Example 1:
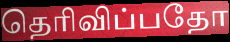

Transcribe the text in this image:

தெரிவிப்பதோ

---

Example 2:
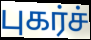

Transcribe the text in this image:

புகர்ச்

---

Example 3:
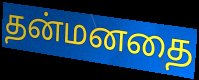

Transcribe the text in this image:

தன்மனதை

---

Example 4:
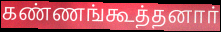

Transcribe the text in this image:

கண்ணங்கூத்தனார்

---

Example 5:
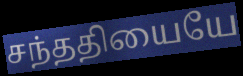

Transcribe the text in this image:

சந்ததியையே